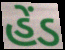
હેંડ